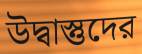
উদ্বাস্তুদের